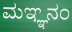
ಮಞ್ಞನಂ